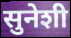
सुनेशी